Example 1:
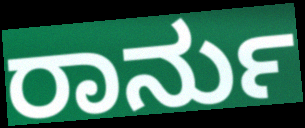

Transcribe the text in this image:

ರಾರ್ನು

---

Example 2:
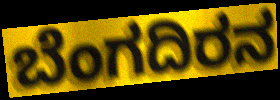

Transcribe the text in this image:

ಬೆಂಗದಿರನ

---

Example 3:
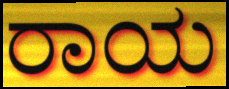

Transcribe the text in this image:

ರಾಯ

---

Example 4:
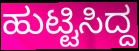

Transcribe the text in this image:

ಹುಟ್ಟಿಸಿದ್ದ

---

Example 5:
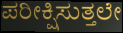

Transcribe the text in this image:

ಪರೀಕ್ಷಿಸುತ್ತಲೇ